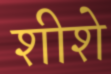
शीशे